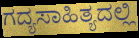
ಗದ್ಯಸಾಹಿತ್ಯದಲ್ಲಿ